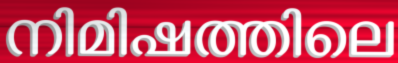
നിമിഷത്തിലെ